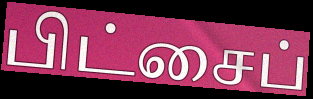
பிட்சைப்